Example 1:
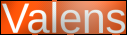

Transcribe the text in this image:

Valens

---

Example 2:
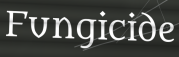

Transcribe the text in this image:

Fungicide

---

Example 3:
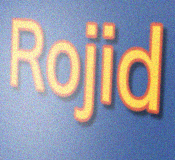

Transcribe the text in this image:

Rojid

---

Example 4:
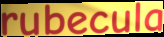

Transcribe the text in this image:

rubecula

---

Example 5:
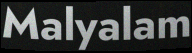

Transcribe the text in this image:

Malyalam